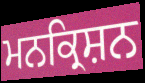
ਮਨਕ੍ਰਿਸ਼ਨ